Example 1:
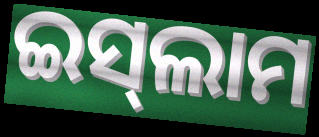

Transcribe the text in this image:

ଇସ୍‌ଲାମ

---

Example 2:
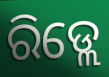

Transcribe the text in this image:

ରିଡ୍ଲେ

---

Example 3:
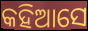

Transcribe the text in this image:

କହିଆସେ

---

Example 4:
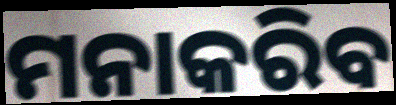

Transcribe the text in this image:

ମନାକରିବ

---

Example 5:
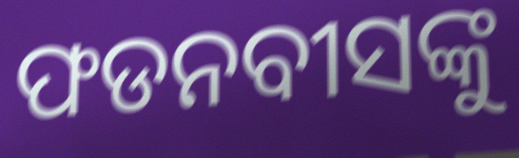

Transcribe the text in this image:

ଫଡନବୀସଙ୍କୁ